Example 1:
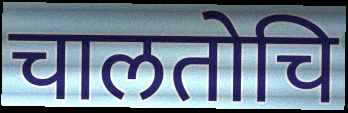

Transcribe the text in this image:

चालतोचि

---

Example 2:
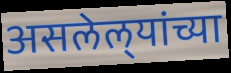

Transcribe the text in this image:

असलेल्यांच्या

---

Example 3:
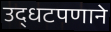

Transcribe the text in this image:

उद्धटपणाने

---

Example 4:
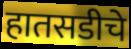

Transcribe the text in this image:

हातसडीचे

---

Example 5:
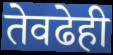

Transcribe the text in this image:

तेवढेही